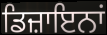
ਡਿਜ਼ਾਇਨਾਂ